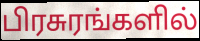
பிரசுரங்களில்